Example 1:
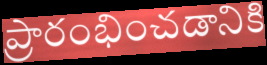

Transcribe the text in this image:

ప్రారంభించడానికి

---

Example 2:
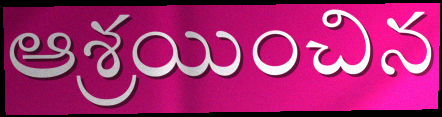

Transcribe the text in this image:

ఆశ్రయించిన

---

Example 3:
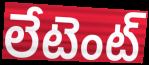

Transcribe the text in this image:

లేటెంట్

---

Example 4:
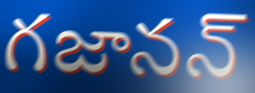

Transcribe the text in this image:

గజానన్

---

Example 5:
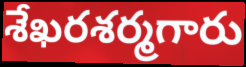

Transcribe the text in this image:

శేఖరశర్మగారు